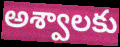
అశ్వాలకు